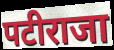
पटीराजा